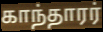
காந்தாரர்